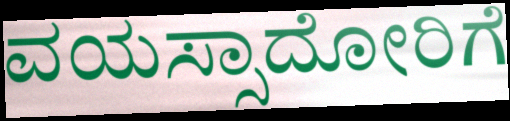
ವಯಸ್ಸಾದೋರಿಗೆ